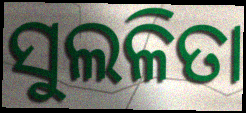
ସୁଲଳିତା